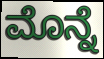
ಮೊನ್ನೆ